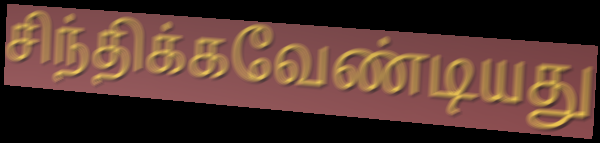
சிந்திக்கவேண்டியது